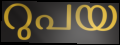
റുപയ